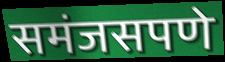
समंजसपणे